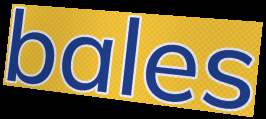
bales